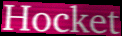
Hocket